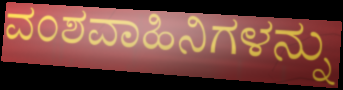
ವಂಶವಾಹಿನಿಗಳನ್ನು